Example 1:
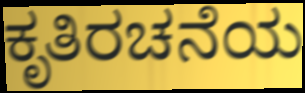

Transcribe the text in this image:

ಕೃತಿರಚನೆಯ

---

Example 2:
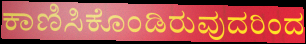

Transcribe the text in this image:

ಕಾಣಿಸಿಕೊಂಡಿರುವುದರಿಂದ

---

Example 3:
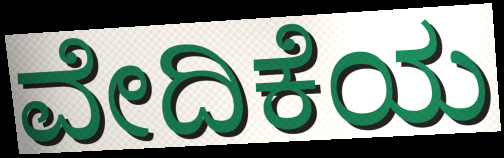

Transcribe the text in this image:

ವೇದಿಕೆಯ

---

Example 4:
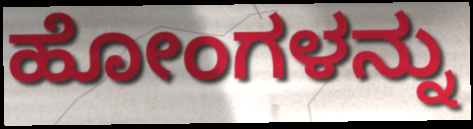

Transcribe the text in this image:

ಹೋಂಗಳನ್ನು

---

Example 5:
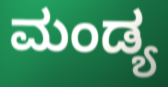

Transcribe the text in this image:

ಮಂಡ್ಯ